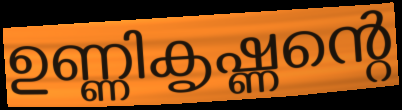
ഉണ്ണികൃഷ്ണന്റെ